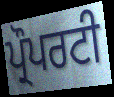
ਪ੍ਰੌਪਰਟੀ